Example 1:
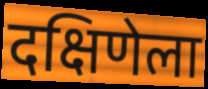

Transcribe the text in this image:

दक्षिणेला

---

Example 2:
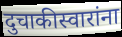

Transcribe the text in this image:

दुचाकीस्वारांना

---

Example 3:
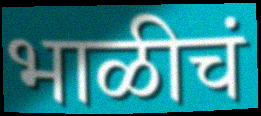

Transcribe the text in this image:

भाळीचं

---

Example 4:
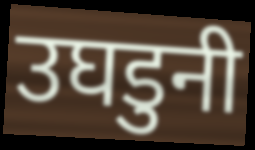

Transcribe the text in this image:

उघडुनी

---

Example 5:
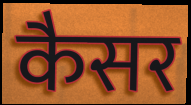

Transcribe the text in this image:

कैसर